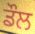
ਡੌਲ